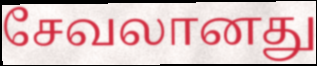
சேவலானது